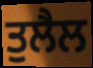
ਤੁਲੈਲ